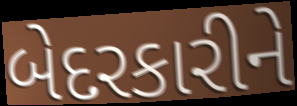
બેદરકારીને